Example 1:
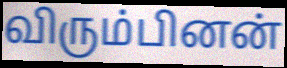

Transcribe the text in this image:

விரும்பினன்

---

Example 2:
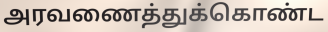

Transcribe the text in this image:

அரவணைத்துக்கொண்ட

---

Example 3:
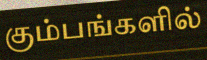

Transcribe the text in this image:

கும்பங்களில்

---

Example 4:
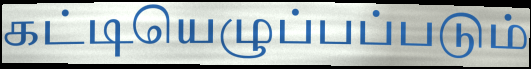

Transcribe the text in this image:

கட்டியெழுப்பப்படும்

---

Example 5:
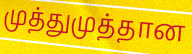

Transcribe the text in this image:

முத்துமுத்தான